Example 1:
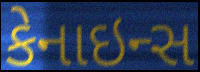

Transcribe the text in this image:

કેનાઇન્સ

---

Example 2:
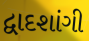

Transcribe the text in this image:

દ્વાદશાંગી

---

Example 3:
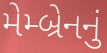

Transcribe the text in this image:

મેમ્બ્રેનનું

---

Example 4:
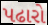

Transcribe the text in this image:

પઢારો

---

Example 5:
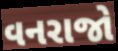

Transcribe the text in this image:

વનરાજો